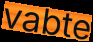
vabte